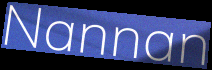
Nannan